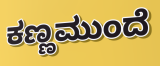
ಕಣ್ಣಮುಂದೆ